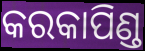
କରକାପିଣ୍ଡ